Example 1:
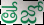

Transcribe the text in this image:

తేజో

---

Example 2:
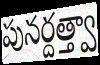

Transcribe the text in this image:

పునర్దత్త్వా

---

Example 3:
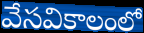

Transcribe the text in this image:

వేసవికాలంలో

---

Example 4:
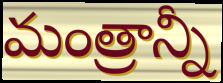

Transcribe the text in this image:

మంత్రాన్నీ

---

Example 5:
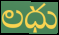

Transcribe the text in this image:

లధు